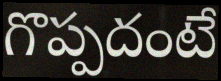
గొప్పదంటే